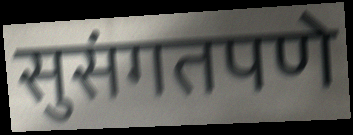
सुसंगतपणे